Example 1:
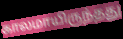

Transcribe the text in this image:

காலமாயிருந்தது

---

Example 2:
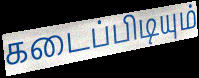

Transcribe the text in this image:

கடைப்பிடியும்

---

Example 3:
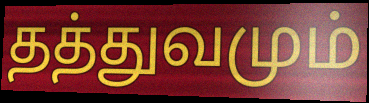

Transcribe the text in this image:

தத்துவமும்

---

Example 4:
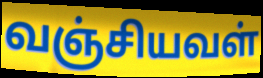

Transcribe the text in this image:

வஞ்சியவள்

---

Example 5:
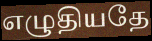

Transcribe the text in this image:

எழுதியதே